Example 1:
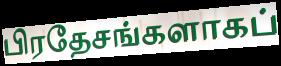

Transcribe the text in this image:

பிரதேசங்களாகப்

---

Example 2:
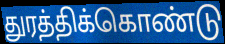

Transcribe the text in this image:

துரத்திக்கொண்டு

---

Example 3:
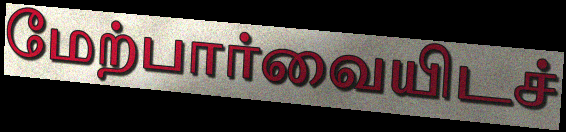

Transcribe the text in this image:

மேற்பார்வையிடச்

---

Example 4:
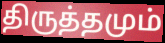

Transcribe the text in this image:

திருத்தமும்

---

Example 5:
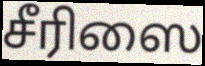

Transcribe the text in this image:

சீரிஸை